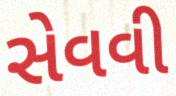
સેવવી